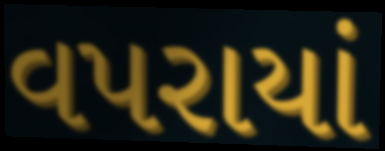
વપરાયાં